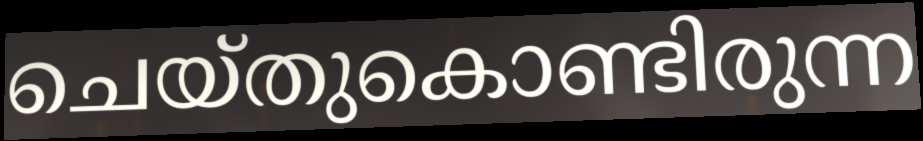
ചെയ്തുകൊണ്ടിരുന്ന